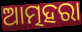
ଆତ୍ମହରା